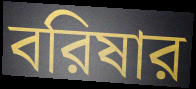
বরিষার